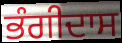
ਭੰਗੀਦਾਸ